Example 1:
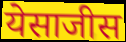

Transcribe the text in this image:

येसाजीस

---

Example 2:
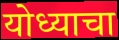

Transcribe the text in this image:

योध्याचा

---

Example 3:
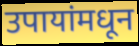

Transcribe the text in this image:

उपायांमधून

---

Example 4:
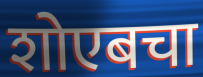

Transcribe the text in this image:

शोएबचा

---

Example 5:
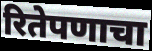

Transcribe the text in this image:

रितेपणाचा